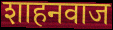
शाहनवाज